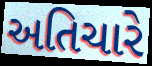
અતિચારે